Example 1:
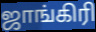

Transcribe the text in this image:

ஜாங்கிரி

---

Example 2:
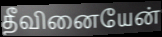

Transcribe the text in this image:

தீவினையேன்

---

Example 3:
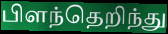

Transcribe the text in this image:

பிளந்தெறிந்து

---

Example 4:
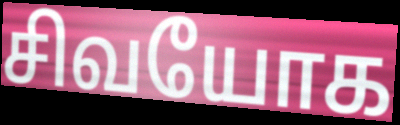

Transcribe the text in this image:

சிவயோக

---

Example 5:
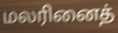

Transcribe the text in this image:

மலரினைத்